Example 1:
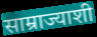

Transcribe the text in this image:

साम्राज्याशी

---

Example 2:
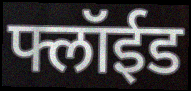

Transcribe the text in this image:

फ्लॉईड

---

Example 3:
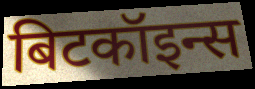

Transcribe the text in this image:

बिटकॉइन्स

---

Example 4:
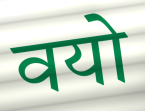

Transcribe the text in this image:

वयो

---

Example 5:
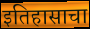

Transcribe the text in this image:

इतिहासाचा